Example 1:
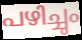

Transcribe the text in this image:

പഴിച്ചും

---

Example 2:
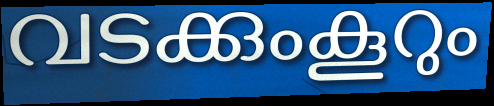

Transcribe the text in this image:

വടക്കുംകൂറും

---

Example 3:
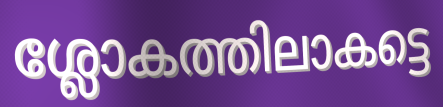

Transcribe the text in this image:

ശ്ലോകത്തിലാകട്ടെ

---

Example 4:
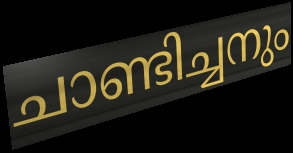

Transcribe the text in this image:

ചാണ്ടിച്ചനും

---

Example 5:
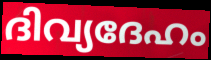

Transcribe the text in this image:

ദിവ്യദേഹം